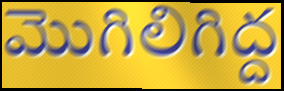
మొగిలిగిద్ద